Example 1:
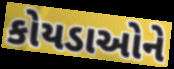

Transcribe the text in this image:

કોયડાઓને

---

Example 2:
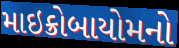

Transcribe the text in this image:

માઇક્રોબાયોમનો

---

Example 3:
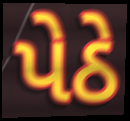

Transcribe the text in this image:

પેઠે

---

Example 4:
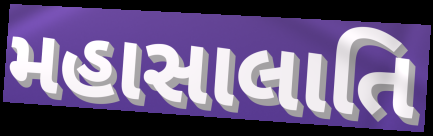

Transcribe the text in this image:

મહાસાલાતિ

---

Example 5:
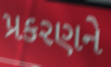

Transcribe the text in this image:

પ્રકરણને